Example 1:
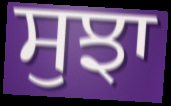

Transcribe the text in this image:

ਸੁਝਾ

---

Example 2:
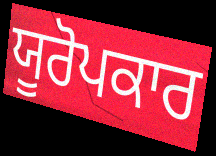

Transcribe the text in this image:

ਯੂਰੋਪਕਾਰ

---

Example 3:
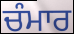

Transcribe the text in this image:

ਚੰਮਾਰ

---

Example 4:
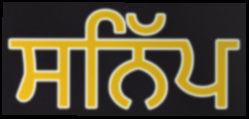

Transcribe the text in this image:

ਸਨਿੱਪ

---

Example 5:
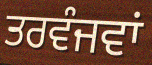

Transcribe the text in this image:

ਤਰਵੰਜਵਾਂ